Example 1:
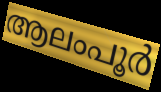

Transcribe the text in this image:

ആലംപൂർ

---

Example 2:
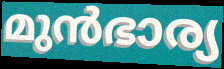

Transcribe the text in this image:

മുൻഭാര്യ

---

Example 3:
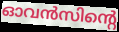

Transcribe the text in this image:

ഓവൻസിന്റെ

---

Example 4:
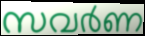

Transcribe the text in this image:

സവർണ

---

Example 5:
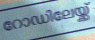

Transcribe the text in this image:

റോഡിലേയ്ക്ക്